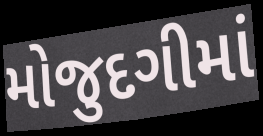
મોજુદગીમાં